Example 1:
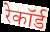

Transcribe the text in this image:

रेकॉर्ड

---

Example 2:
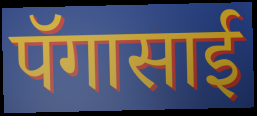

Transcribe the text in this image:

पॅगासाई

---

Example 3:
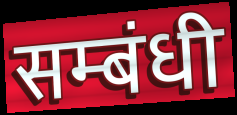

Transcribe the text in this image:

सम्बंधी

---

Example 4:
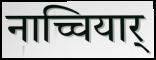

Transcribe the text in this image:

नाच्चियार्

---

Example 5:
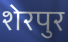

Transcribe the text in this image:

शेरपुर